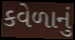
કવેળાનું